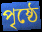
পৃষ্ঠে